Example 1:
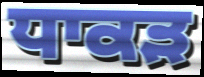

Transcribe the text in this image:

ਧਾਕੜ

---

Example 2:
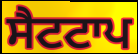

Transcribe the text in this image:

ਸੈਟਟਾਪ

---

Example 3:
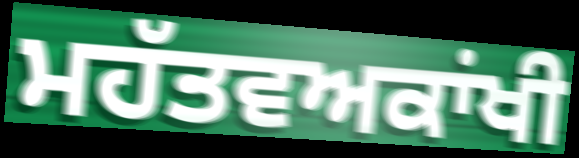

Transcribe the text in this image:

ਮਹੱਤਵਅਕਾਂਖੀ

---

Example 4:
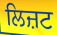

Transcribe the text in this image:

ਲਿਜ਼ਟ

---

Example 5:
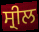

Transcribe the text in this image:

ਸ੍ਰੀਲ